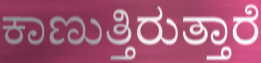
ಕಾಣುತ್ತಿರುತ್ತಾರೆ